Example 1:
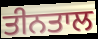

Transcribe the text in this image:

ਤੀਨਤਾਲ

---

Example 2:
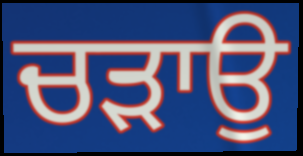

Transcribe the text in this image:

ਚੜਾਉ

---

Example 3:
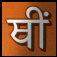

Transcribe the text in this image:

ਥੀਂ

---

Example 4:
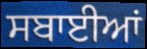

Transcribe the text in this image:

ਸਬਾਈਆਂ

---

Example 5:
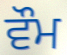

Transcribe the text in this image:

ਵੌਮ